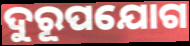
ଦୁରୂପଯୋଗ